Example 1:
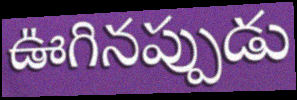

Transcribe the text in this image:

ఊగినప్పుడు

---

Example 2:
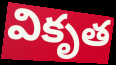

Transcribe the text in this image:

వికృత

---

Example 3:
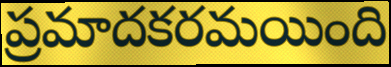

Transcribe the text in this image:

ప్రమాదకరమయింది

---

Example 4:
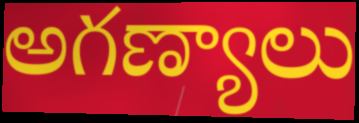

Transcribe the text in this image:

అగణ్యాలు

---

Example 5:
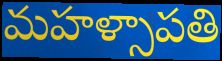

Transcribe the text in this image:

మహళ్సాపతి